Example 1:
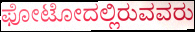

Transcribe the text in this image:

ಫೋಟೋದಲ್ಲಿರುವವರು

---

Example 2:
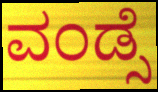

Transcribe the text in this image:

ವಂಡ್ಸೆ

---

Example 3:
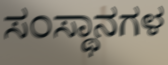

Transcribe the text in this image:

ಸಂಸ್ಥಾನಗಳ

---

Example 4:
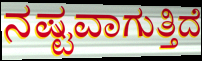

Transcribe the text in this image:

ನಷ್ಟವಾಗುತ್ತಿದೆ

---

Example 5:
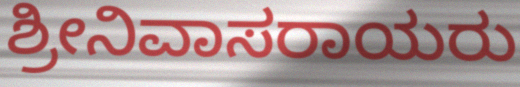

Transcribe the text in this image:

ಶ್ರೀನಿವಾಸರಾಯರು